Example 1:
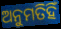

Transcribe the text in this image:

ଅନୁମତିହିଁ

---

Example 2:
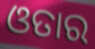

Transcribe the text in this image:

ଓତାର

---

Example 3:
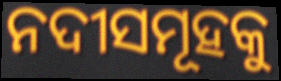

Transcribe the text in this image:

ନଦୀସମୂହକୁ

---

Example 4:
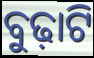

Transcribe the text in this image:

ବୁଢ଼ାଟି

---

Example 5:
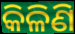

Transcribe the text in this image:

କିଳିଣି